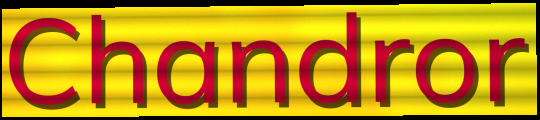
Chandror